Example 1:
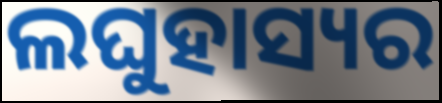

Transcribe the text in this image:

ଲଘୁହାସ୍ୟର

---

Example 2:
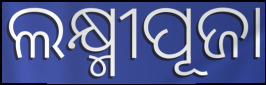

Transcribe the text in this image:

ଲକ୍ଷ୍ମୀପୂଜା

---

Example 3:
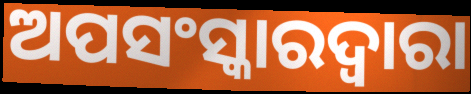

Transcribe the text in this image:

ଅପସଂସ୍କାରଦ୍ୱାରା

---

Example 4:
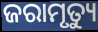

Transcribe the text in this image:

ଜରାମୃତ୍ୟୁ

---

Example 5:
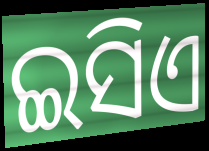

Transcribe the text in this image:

ଇସିଏ